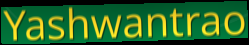
Yashwantrao